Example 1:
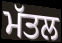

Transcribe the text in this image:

ਮੱਤਲ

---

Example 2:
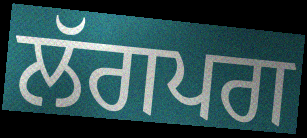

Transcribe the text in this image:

ਲੱਗਪਗ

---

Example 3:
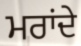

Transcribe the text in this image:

ਮਰਾਂਦੇ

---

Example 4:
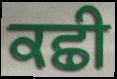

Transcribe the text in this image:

ਕਛੀ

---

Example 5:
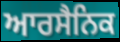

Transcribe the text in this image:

ਆਰਸੈਨਿਕ